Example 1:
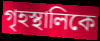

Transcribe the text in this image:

গৃহস্থালিকে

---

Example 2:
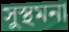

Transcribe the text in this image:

সুস্থমনা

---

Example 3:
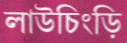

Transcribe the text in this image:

লাউচিংড়ি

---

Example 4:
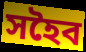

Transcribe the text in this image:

সহৈব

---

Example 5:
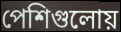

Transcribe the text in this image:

পেশিগুলোয়